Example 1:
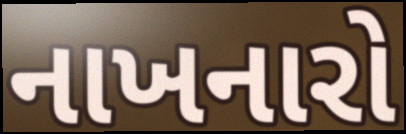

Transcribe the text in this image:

નાખનારો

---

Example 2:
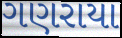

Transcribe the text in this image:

ગણરાયા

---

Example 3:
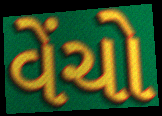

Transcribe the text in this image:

વેંચો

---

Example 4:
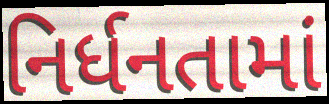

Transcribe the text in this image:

નિર્ધનતામાં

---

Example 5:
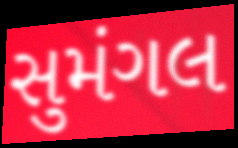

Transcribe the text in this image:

સુમંગલ